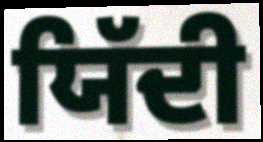
ਯਿੱਦੀ